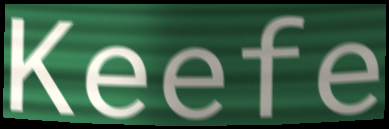
Keefe